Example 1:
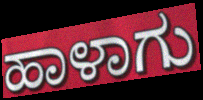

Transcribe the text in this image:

ಹಾಳಾಗು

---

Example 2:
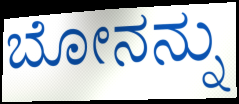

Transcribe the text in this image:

ಬೋನನ್ನು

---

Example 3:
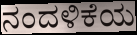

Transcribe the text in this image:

ನಂದಳಿಕೆಯ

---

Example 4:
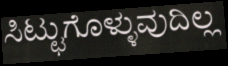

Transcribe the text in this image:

ಸಿಟ್ಟುಗೊಳ್ಳುವುದಿಲ್ಲ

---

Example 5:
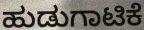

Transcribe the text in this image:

ಹುಡುಗಾಟಿಕೆ